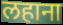
लहाना